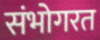
संभोगरत